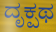
ದೃಕ್ಪಥ